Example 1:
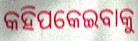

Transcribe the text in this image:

କହିପକେଇବାକୁ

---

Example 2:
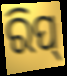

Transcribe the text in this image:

ରିପ୍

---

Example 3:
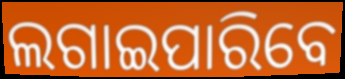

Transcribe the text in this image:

ଲଗାଇପାରିବେ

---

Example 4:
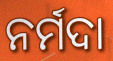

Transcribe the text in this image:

ନର୍ମଦା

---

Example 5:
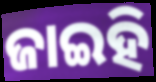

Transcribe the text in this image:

ଜାଇହି